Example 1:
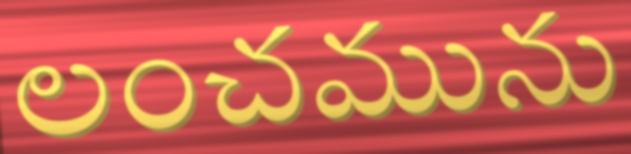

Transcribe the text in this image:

లంచమును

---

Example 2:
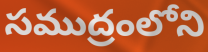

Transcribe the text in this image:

సముద్రంలోని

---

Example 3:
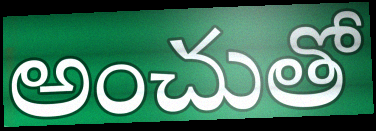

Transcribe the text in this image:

అంచుతో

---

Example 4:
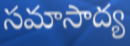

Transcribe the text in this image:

సమాసాద్య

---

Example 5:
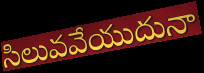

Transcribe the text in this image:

సిలువవేయుదునా